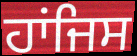
ਹਾਂਜਿਸ